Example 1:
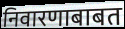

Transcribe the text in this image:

निवारणाबाबत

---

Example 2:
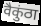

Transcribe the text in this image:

वैकुंठा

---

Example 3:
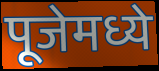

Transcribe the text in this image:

पूजेमध्ये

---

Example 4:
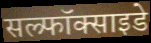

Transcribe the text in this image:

सल्फॉक्साइडे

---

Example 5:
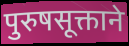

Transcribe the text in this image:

पुरुषसूक्ताने